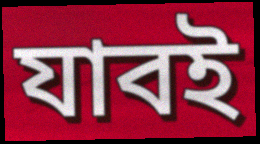
যাবই